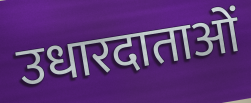
उधारदाताओं